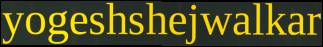
yogeshshejwalkar